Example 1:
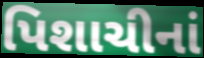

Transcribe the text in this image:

પિશાચીનાં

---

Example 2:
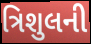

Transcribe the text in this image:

ત્રિશુલની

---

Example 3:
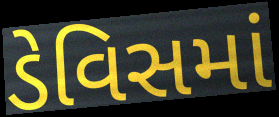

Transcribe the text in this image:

ડેવિસમાં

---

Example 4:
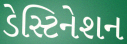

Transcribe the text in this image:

ડેસ્ટિનેશન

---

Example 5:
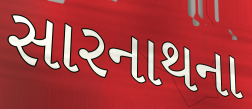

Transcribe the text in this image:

સારનાથના